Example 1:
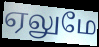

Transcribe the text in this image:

ஏலுமே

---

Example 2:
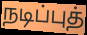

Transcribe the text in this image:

நடிப்புத்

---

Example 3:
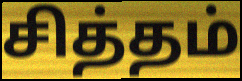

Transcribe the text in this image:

சித்தம்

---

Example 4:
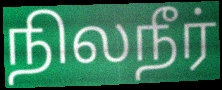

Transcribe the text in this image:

நிலநீர்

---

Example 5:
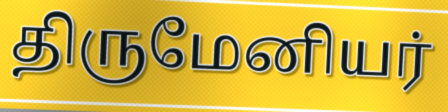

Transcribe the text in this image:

திருமேனியர்